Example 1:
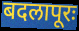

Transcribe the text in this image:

बदलापूरः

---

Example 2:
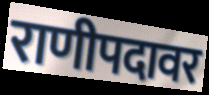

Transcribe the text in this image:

राणीपदावर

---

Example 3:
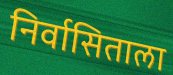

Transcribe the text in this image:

निर्वासिताला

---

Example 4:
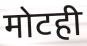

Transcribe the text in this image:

मोटही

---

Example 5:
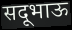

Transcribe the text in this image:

सदूभाऊ